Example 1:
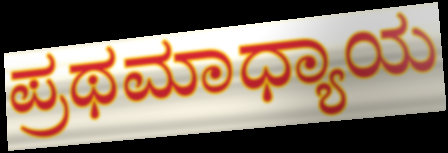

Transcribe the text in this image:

ಪ್ರಥಮಾಧ್ಯಾಯ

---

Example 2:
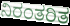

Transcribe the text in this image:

ನಿರಂತರಿತ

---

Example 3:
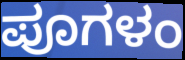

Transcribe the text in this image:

ಪೂಗಳಂ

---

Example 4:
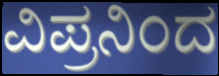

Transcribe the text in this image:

ವಿಪ್ರನಿಂದ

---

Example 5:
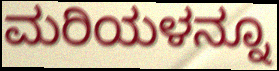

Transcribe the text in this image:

ಮರಿಯಳನ್ನೂ